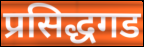
प्रसिद्धगड